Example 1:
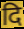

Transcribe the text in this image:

दि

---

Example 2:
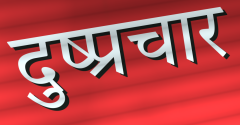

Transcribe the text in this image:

दुष्‍प्रचार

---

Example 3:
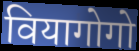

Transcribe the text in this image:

वियागोगो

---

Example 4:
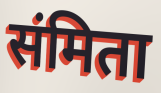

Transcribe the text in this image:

संमिता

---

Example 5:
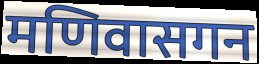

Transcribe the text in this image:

मणिवासगन